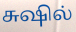
சுஷில்